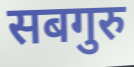
सबगुरु